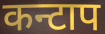
कन्टाप